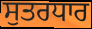
ਸੁਤਰਧਾਰ